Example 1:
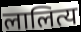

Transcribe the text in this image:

लालित्य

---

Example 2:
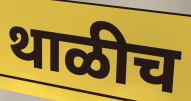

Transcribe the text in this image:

थाळीच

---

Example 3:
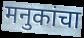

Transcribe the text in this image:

मनुकांचा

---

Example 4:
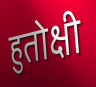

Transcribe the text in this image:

हुतोक्षी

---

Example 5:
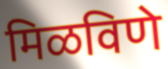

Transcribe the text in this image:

मिळविणे